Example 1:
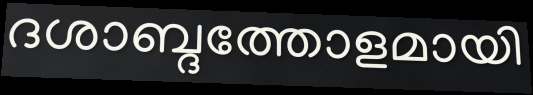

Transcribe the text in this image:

ദശാബ്ദത്തോളമായി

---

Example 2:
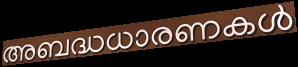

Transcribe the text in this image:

അബദ്ധധാരണകൾ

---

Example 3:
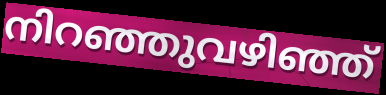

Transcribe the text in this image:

നിറഞ്ഞുവഴിഞ്ഞ്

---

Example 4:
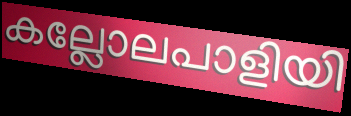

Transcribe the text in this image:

കല്ലോലപാളിയി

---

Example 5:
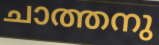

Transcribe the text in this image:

ചാത്തനു